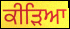
ਕੀੜਿਆ